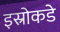
इस्रोकडे